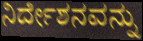
ನಿರ್ದೇಶನವನ್ನು